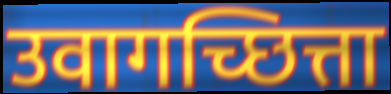
उवागच्छित्ता